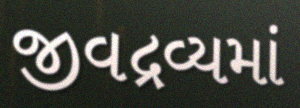
જીવદ્રવ્યમાં